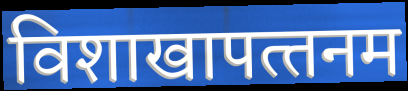
विशाखापत्‍तनम